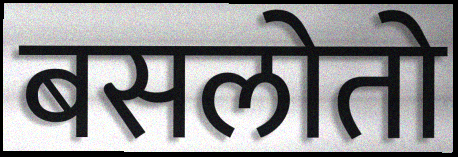
बसलोतो